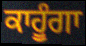
ਕਾਹੂੰਗਾ